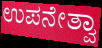
ಉಪನೇತ್ವಾ